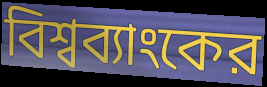
বিশ্বব্যাংকের